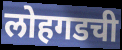
लोहगडची